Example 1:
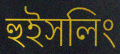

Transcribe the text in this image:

হুইসলিং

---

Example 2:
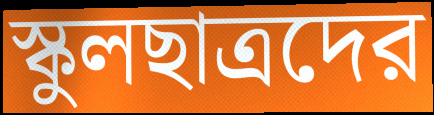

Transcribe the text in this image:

স্কুলছাত্রদের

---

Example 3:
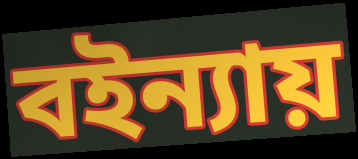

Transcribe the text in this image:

বইন্যায়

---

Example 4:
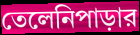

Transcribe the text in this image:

তেলেনিপাড়ার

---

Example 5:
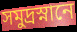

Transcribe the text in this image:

সমুদ্রস্নানে